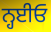
ਨ੍ਹਈਓ